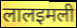
लालइमली